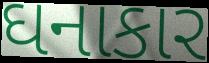
ઘનાકાર